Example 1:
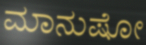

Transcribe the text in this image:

ಮಾನುಷೋ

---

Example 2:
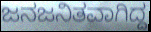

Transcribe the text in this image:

ಜನಜನಿತವಾಗಿದ್ದ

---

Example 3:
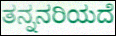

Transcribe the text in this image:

ತನ್ನನರಿಯದೆ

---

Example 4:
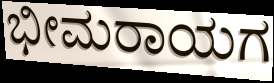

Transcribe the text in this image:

ಭೀಮರಾಯಗ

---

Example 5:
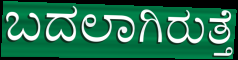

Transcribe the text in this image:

ಬದಲಾಗಿರುತ್ತೆ